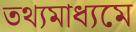
তথ্যমাধ্যমে